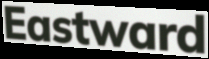
Eastward